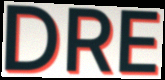
DRE